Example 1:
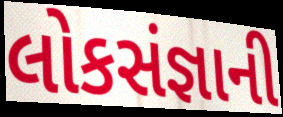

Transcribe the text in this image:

લોકસંજ્ઞાની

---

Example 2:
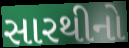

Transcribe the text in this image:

સારથીનો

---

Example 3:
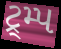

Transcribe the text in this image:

ટ્ર્મ્પ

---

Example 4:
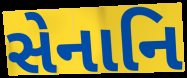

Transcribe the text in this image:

સેનાનિ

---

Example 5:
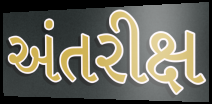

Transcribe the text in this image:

અંતરીક્ષ